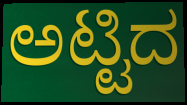
ಅಟ್ಟಿದ